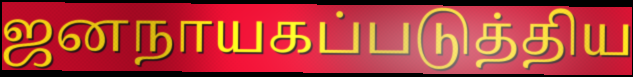
ஜனநாயகப்படுத்திய